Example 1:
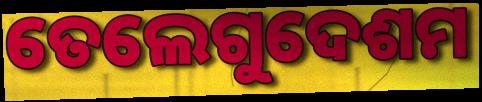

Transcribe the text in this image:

ତେଲେଗୁଦେଶମ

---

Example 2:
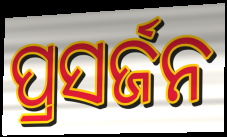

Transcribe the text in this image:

ପ୍ରସର୍ଜନ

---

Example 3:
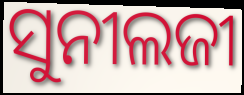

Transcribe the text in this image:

ସୁନୀଲଜୀ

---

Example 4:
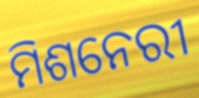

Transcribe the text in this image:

ମିଶନେରୀ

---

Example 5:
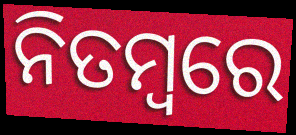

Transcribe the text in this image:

ନିତମ୍ବରେ